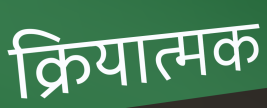
क्रियात्‍मक